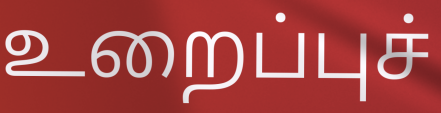
உறைப்புச்